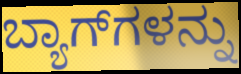
ಬ್ಯಾಗ್‍ಗಳನ್ನು